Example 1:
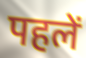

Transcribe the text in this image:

पहलें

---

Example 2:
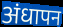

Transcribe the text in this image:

अंधापन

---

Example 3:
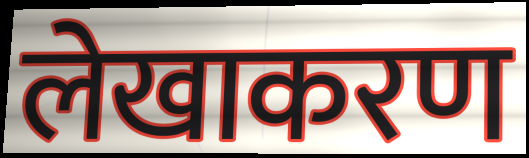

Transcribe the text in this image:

लेखाकरण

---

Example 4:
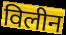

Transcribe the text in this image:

विलीन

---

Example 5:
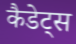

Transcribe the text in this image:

कैडेट्स